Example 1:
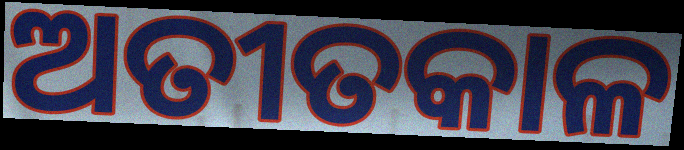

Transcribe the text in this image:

ଅତୀତକାଳ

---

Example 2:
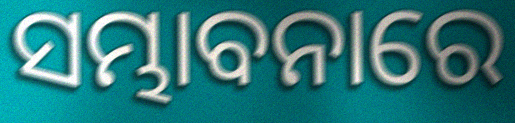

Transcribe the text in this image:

ସମ୍ଭାବନାରେ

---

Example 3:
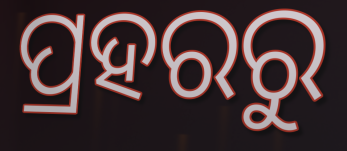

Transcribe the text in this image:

ପ୍ରହରରୁ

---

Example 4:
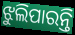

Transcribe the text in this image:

ଝୁଲିପାରନ୍ତି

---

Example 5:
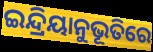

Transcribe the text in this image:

ଇନ୍ଦ୍ରିୟାନୁଭୂତିରେ